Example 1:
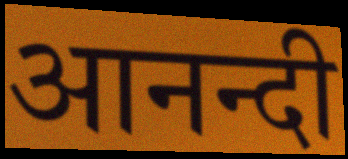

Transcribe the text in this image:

आनन्दी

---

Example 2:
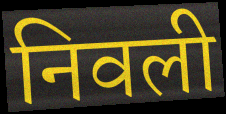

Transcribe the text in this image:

निवली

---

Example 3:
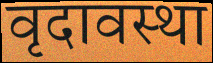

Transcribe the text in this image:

वृदावस्था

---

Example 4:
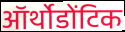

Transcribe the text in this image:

ऑर्थोडोंटिक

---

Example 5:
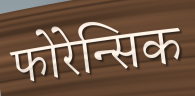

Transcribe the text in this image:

फोरेन्सिक